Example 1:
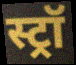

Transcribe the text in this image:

स्ट्रॉ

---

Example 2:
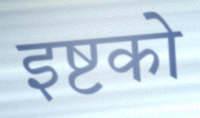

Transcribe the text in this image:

इष्टको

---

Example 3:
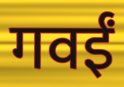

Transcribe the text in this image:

गवईं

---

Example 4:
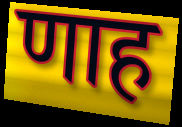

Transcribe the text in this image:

णाह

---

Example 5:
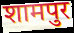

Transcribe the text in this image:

शामपुर